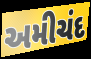
અમીચંદ